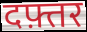
दफ़्तर